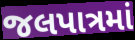
જલપાત્રમાં